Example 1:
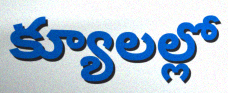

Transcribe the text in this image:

క్యూలల్లో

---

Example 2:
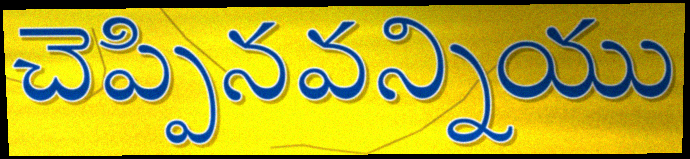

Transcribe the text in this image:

చెప్పినవన్నియు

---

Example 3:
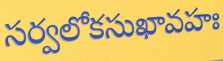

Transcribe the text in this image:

సర్వలోకసుఖావహః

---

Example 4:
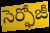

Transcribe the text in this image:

సెర్ఫోజీ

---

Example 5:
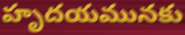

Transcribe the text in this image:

హృదయమునకు